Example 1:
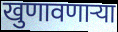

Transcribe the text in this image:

खुणावणाऱ्या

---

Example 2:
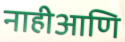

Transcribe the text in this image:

नाहीआणि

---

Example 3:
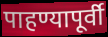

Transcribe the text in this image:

पाहण्यापूर्वी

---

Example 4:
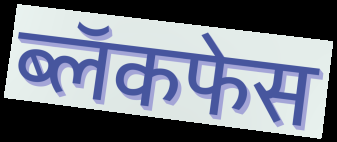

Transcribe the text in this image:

ब्लॅकफेस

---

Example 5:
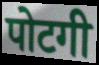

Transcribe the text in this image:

पोटगी